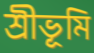
শ্রীভূমি